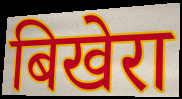
बिखेरा